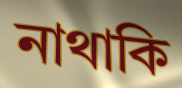
নাথাকি